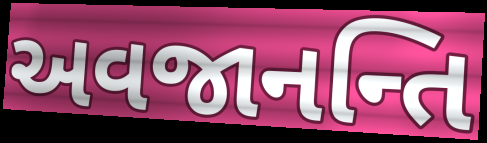
અવજાનન્તિ